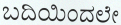
ಬದಿಯಿಂದಲೇ